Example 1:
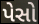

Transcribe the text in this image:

પેસો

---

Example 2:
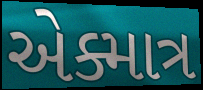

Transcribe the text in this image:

એક્માત્ર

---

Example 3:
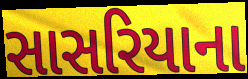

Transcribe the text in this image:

સાસરિયાના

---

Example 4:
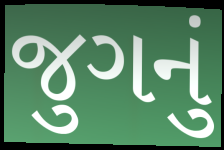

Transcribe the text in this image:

જુગનું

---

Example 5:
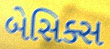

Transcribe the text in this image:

બેસિક્સ